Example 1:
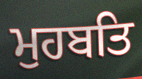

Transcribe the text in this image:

ਮੁਹਬਤਿ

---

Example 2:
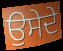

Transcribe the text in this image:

ਉਸੇਦੇ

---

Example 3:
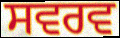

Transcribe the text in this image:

ਸਵਰਵ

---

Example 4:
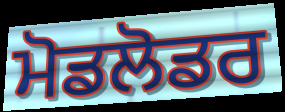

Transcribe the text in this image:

ਮੋਡਲੋਡਰ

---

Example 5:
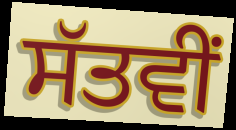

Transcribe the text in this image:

ਸੱਤਵੀਂ